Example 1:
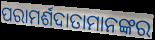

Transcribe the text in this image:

ପରାମର୍ଶଦାତାମାନଙ୍କର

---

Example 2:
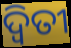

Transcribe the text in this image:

ଦ୍ୱିତୀ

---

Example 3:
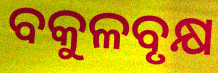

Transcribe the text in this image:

ବକୁଳବୃକ୍ଷ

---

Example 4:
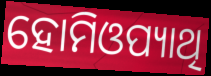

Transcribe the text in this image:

ହୋମିଓପ୍ୟାଥି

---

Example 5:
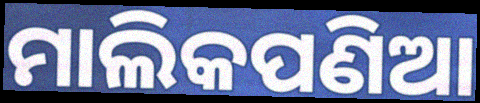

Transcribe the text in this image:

ମାଲିକପଣିଆ